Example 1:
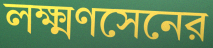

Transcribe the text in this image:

লক্ষ্মণসেনের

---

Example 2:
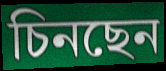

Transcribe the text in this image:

চিনছেন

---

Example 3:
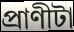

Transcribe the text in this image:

প্রাণীটা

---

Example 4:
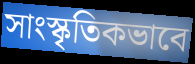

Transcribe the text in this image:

সাংস্কৃতিকভাবে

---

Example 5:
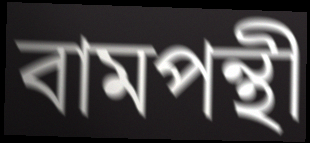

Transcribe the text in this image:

বামপন্থী